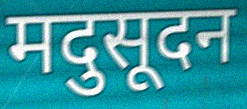
मदुसूदन